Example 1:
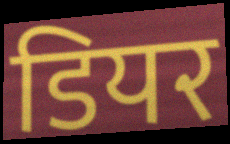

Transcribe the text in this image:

डियर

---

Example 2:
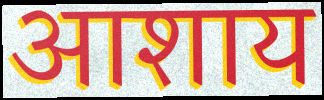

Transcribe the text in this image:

आशाय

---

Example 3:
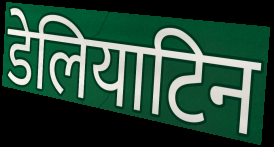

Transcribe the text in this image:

डेलियाटिन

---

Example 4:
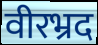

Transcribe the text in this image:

वीरभ्रद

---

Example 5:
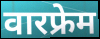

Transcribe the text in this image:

वारफ्रेम